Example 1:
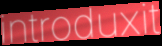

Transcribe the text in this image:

introduxit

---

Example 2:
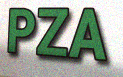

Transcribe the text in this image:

PZA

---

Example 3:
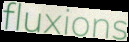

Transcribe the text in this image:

fluxions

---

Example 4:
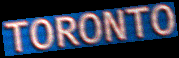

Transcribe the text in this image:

TORONTO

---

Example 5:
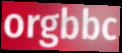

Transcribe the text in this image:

orgbbc